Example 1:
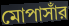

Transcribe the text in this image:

মোপাসাঁর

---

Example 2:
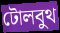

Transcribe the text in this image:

টোলবুথ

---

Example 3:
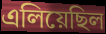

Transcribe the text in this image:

এলিয়েছিল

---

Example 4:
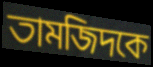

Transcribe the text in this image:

তামজিদকে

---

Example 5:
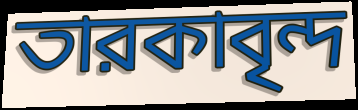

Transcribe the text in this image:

তারকাবৃন্দ